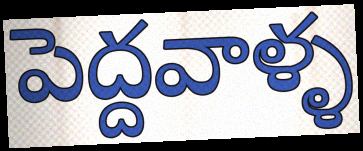
పెద్దవాళ్ళ